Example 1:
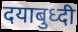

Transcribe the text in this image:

दयाबुध्दी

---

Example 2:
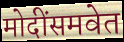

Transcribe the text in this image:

मोदींसमवेत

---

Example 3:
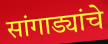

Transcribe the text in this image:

सांगाड्यांचे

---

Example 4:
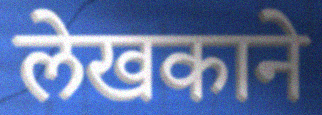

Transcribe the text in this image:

लेखकाने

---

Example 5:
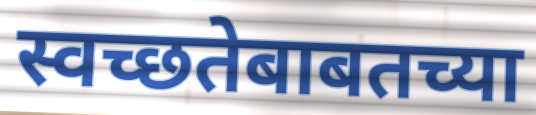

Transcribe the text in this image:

स्वच्छतेबाबतच्या